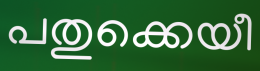
പതുക്കെയീ